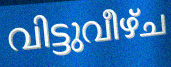
വിട്ടുവീഴ്ച